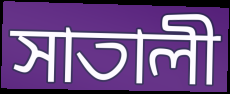
সাতালী